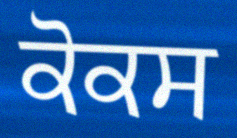
ਕੋਕਸ